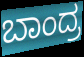
ಬಾಂದ್ರ